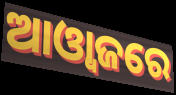
ଆଓ୍ୱାଜରେ